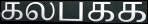
கலபகக